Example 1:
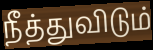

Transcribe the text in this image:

நீத்துவிடும்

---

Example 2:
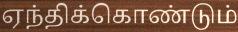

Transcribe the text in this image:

ஏந்திக்கொண்டும்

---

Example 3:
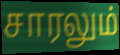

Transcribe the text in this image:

சாரலும்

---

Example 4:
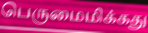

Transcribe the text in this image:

பெருமைமிக்கது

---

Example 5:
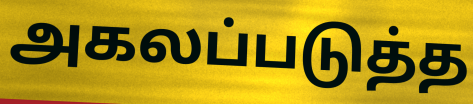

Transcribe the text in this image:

அகலப்படுத்த